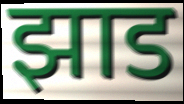
झाड